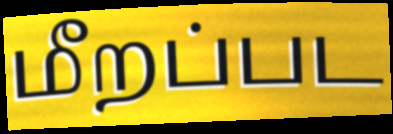
மீறப்பட